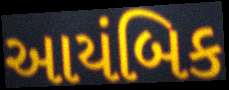
આયંબિક